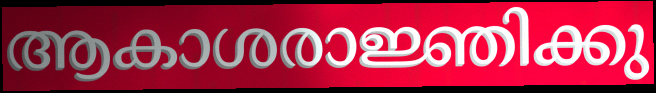
ആകാശരാജ്ഞിക്കു